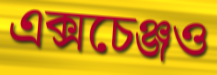
এক্সচেঞ্জও